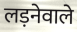
लड़नेवाले